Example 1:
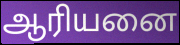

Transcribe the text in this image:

ஆரியனை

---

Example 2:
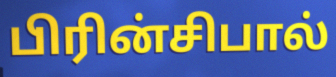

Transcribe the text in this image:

பிரின்சிபால்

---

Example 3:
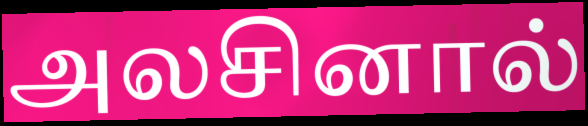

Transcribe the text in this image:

அலசினால்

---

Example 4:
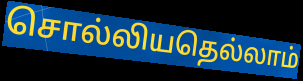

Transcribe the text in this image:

சொல்லியதெல்லாம்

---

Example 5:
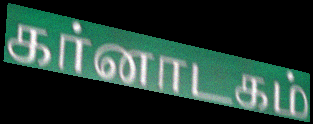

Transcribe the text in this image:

கர்னாடகம்